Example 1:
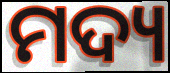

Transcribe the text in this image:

ମଦ୍ୟ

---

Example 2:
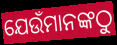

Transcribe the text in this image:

ଯେଉଁମାନଙ୍କଠୁ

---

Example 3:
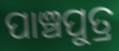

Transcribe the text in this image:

ପାଞ୍ଚପୁତ୍ର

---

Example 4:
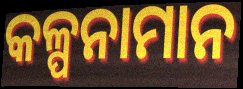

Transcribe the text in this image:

କଳ୍ପନାମାନ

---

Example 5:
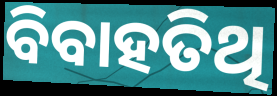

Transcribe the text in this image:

ବିବାହତିଥି